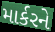
માર્કરને